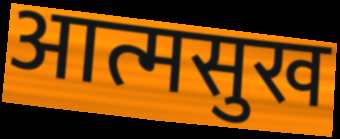
आत्मसुख